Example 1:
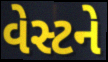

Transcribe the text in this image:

વેસ્ટને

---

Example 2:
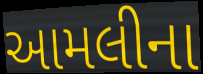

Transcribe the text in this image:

આમલીના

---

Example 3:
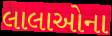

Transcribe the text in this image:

લાલાઓના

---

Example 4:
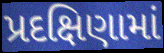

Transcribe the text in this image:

પ્રદક્ષિણામાં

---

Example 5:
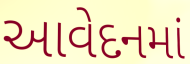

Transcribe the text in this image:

આવેદનમાં